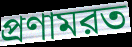
প্রণামরত